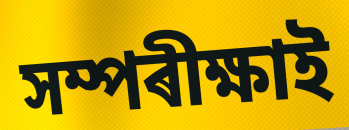
সম্পৰীক্ষাই